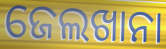
ଜେଲଖାନା